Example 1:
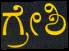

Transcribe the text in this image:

ಗ್ರೇಶಿ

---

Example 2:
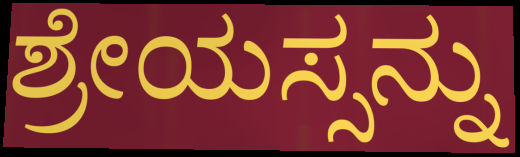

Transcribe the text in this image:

ಶ್ರೇಯಸ್ಸನ್ನು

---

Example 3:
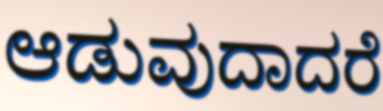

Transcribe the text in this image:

ಆಡುವುದಾದರೆ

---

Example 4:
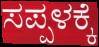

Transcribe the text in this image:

ಸಪ್ಪಳಕ್ಕೆ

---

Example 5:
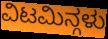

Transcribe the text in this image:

ವಿಟಮಿನ್ಗಳು